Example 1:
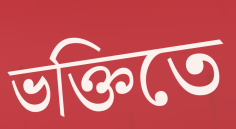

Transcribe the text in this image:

ভক্তিতে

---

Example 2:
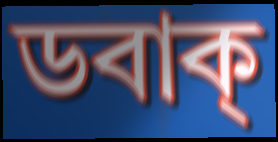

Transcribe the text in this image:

ডবাক্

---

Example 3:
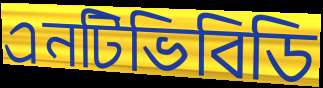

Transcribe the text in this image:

এনটিভিবিডি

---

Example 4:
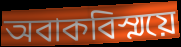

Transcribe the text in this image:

অবাকবিস্ময়ে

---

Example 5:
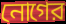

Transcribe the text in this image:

নোগের